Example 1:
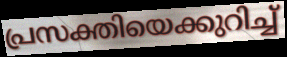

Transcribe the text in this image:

പ്രസക്തിയെക്കുറിച്ച്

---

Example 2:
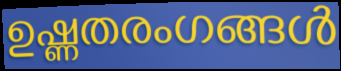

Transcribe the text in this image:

ഉഷ്ണതരംഗങ്ങൾ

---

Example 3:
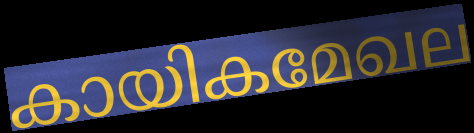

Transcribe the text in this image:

കായികമേഖല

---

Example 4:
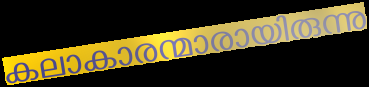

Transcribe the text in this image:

കലാകാരന്മാരായിരുന്നു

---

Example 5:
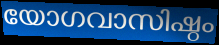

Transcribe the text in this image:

യോഗവാസിഷ്ഠം